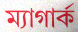
ম্যাগার্ক